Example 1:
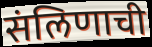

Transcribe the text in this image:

संलिणाची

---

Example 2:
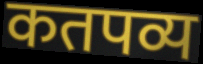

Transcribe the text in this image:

कतपव्य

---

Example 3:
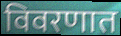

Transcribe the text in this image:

विवरणात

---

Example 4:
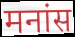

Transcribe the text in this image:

मनांस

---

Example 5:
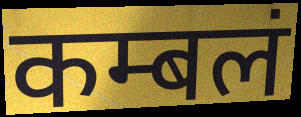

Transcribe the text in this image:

कम्बलं